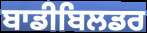
ਬਾਡੀਬਿਲਡਰ